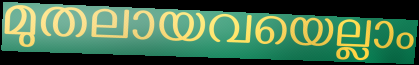
മുതലായവയെല്ലാം